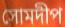
সোমদীপ